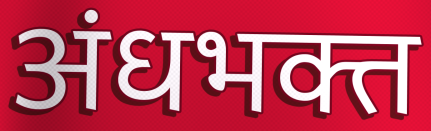
अंधभक्त